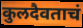
कुलदैवताचं